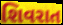
શિવરાત